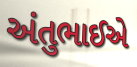
અંતુભાઈએ